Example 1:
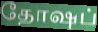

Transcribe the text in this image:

தோஷப்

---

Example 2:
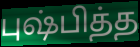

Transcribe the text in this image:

புஷ்பித்த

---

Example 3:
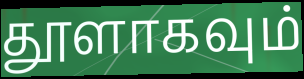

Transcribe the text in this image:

தூளாகவும்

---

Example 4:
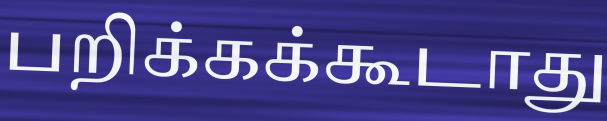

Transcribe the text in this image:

பறிக்கக்கூடாது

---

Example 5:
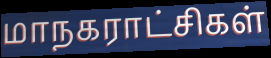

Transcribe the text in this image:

மாநகராட்சிகள்